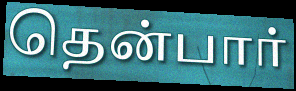
தென்பார்